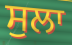
ਸੁਲਾ